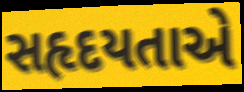
સહૃદયતાએ